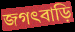
জগৎবাড়ি